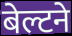
बेल्टने